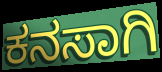
ಕನಸಾಗಿ